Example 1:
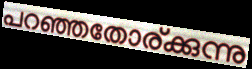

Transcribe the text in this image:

പറഞ്ഞതോര്ക്കുന്നു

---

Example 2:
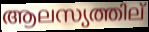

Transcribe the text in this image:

ആലസ്യത്തില്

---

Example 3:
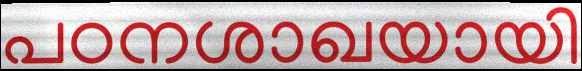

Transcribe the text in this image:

പഠനശാഖയായി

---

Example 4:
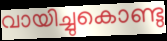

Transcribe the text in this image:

വായിച്ചുകൊണ്ടു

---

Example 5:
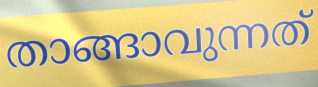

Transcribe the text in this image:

താങ്ങാവുന്നത്